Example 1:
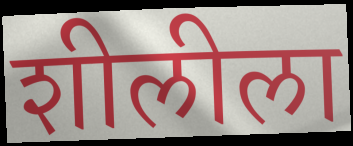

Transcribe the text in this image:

शीलीला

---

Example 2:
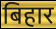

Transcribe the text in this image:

बिहार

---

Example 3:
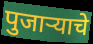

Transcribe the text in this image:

पुजाऱ्याचे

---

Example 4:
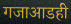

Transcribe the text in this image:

गजाआडही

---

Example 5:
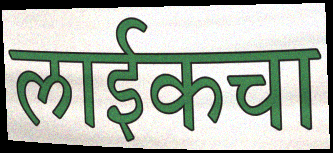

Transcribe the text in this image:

लाईकचा